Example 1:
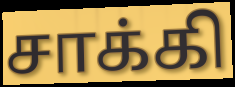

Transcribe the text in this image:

சாக்கி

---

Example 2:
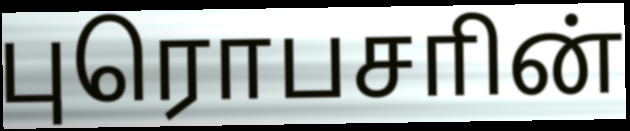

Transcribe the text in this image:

புரொபசரின்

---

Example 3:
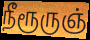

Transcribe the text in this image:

நீரூருஞ்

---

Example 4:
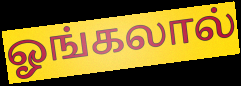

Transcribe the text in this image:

ஓங்கலால்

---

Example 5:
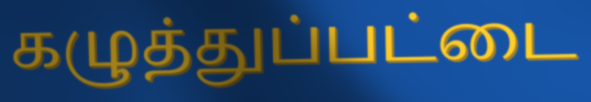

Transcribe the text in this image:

கழுத்துப்பட்டை